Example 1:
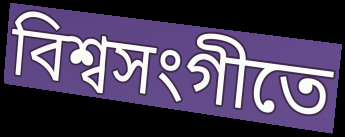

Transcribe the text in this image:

বিশ্বসংগীতে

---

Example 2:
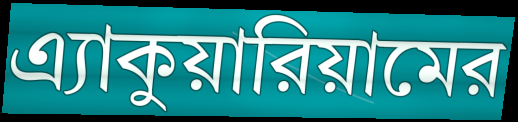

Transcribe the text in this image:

এ্যাকুয়ারিয়ামের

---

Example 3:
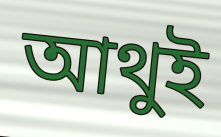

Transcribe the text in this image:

আথুই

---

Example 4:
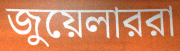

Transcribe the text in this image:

জুয়েলাররা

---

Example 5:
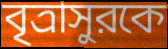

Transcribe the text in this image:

বৃত্রাসুরকে